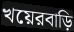
খয়েরবাড়ি